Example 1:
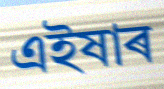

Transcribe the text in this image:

এইষাৰ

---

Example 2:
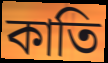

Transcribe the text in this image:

কাতি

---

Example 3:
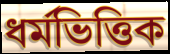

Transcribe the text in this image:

ধৰ্মভিত্তিক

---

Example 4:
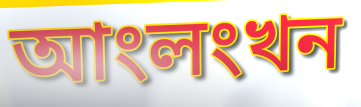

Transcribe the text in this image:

আংলংখন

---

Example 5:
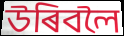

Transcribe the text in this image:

উৰিবলৈ